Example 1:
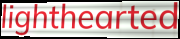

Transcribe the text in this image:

lighthearted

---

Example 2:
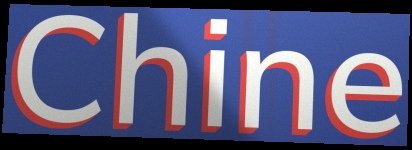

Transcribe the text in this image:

Chine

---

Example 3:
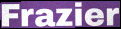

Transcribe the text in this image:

Frazier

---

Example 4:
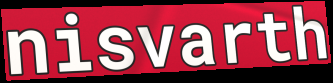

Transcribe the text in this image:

nisvarth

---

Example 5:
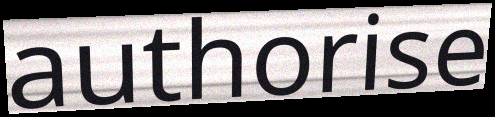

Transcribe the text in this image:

authorise